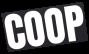
COOP